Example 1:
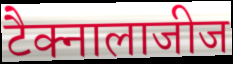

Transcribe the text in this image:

टैक्नालाजीज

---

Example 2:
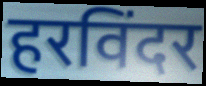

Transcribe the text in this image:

हरविंदर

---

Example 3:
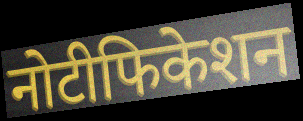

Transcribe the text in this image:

नोटीफिकेशन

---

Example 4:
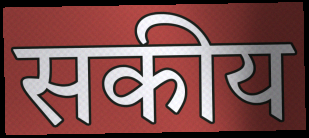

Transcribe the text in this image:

सकीय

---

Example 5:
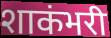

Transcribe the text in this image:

शाकंभरी